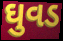
ઘુવડ